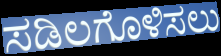
ಸಡಿಲಗೊಳಿಸಲು